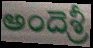
అందెశ్రీ